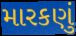
મારકણું